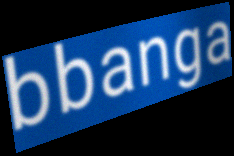
bbanga